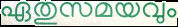
ഏതുസമയവും